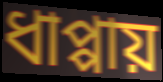
ধাপ্পায়